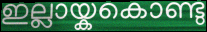
ഇല്ലായ്കകൊണ്ടു